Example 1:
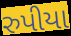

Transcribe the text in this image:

રુપીયા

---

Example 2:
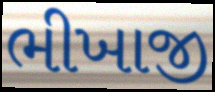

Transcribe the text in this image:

ભીખાજી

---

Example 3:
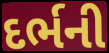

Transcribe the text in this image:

દર્ભની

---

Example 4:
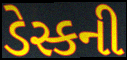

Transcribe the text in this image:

ડેસ્કની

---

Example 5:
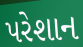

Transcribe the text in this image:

પરેશાન